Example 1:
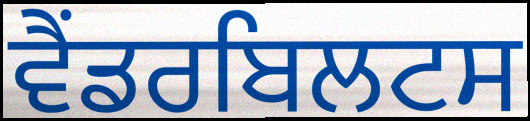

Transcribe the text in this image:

ਵੈਂਡਰਬਿਲਟਸ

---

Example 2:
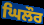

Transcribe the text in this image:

ਘਿਲੌਰ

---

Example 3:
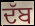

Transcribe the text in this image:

ਦੱਬ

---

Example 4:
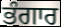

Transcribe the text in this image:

ਭੰਗਾਰ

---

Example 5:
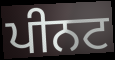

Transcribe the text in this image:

ਪੀਨਟ